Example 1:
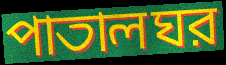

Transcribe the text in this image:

পাতালঘর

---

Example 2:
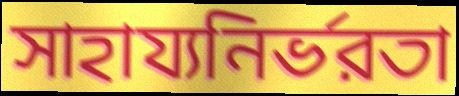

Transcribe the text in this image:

সাহায্যনির্ভরতা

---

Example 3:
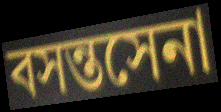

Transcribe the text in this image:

বসন্তসেনা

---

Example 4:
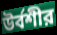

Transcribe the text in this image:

উর্বশীর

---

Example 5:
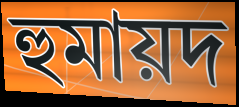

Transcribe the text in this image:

হুমায়দ